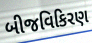
બીજવિકિરણ